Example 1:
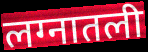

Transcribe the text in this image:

लग्नातली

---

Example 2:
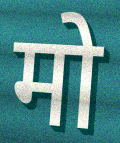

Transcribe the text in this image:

मो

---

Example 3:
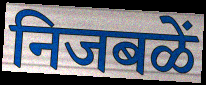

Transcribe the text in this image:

निजबळें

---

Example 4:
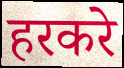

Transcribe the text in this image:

हरकरे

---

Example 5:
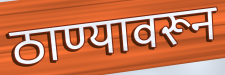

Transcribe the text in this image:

ठाण्यावरून